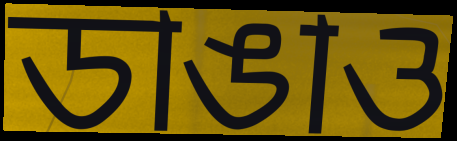
ডাঙাও